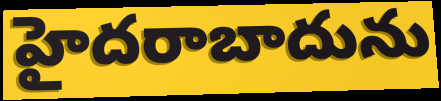
హైదరాబాదును